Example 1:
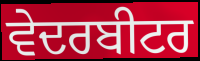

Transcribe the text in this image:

ਵੇਦਰਬੀਟਰ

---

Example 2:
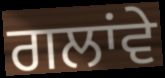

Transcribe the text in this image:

ਗਲਾਂਵੇ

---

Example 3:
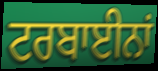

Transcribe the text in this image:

ਟਰਬਾਈਨਾਂ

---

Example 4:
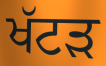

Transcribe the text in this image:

ਖੱਟੜ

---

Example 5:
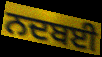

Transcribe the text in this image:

ਨਦਬਈ